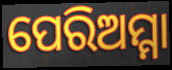
ପେରିଅମ୍ମା